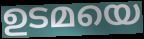
ഉടമയെ